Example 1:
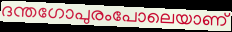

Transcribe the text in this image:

ദന്തഗോപുരംപോലെയാണ്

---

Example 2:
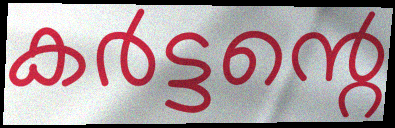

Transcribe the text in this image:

കർട്ടന്റെ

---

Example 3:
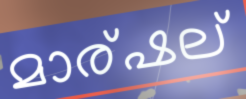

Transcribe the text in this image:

മാര്ഷല്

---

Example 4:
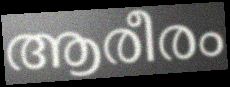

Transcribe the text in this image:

ആരീരം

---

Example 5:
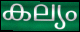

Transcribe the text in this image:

കല്യം